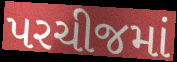
પરચીજમાં